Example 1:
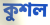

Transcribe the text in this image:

কুশল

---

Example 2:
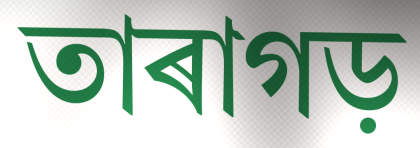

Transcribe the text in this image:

তাৰাগড়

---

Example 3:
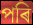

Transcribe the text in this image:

পৰি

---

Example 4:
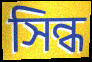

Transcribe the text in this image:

সিন্ধ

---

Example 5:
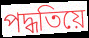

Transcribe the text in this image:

পদ্ধতিয়ে